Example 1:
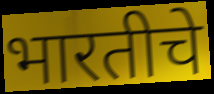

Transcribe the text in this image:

भारतीचे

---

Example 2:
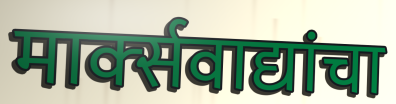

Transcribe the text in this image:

मार्क्‍सवाद्यांचा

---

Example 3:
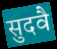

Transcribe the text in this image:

सुदवै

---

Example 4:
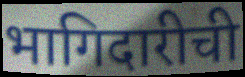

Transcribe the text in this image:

भागिदारीची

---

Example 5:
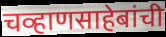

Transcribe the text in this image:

चव्हाणसाहेबांची